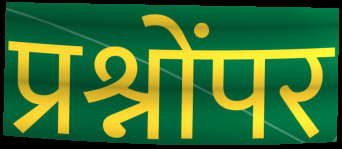
प्रश्नोंपर